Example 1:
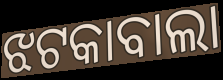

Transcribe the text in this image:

ଝଟକାବାଲା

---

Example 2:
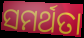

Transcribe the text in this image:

ସମର୍ଥତା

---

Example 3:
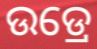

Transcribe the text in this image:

ଉଡ୍ରେ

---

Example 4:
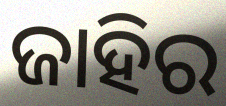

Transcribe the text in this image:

ଜାହିର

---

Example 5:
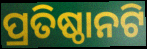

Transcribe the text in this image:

ପ୍ରତିଷ୍ଠାନଟି